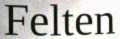
Felten